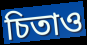
চিতাও